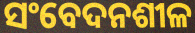
ସଂବେଦନଶୀଳ